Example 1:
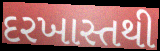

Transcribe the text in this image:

દરખાસ્તથી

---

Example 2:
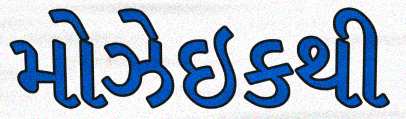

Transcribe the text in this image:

મોઝેઇકથી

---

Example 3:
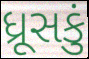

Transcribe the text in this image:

ધ્રૂસકું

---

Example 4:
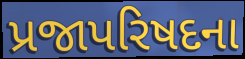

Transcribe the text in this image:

પ્રજાપરિષદના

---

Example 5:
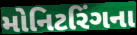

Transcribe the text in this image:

મોનિટરિંગના